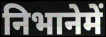
निभानेमें